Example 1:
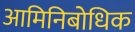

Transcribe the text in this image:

आमिनिबोधिक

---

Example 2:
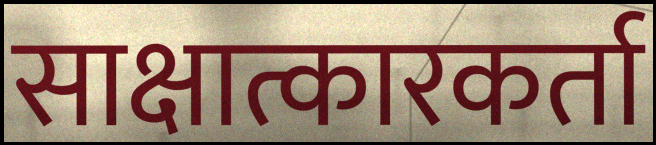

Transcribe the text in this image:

साक्षात्कारकर्ता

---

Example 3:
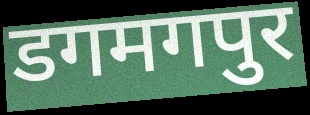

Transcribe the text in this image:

डगमगपुर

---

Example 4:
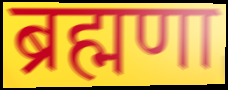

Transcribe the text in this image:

ब्रह्मणा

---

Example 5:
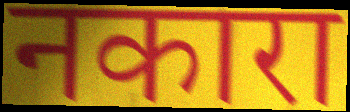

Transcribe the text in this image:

नकारा